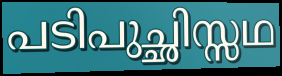
പടിപുച്ഛിസ്സഥ